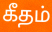
கீதம்